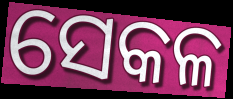
ସେକଳ